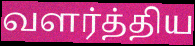
வளர்த்திய